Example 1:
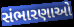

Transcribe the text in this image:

સંભારણાઓ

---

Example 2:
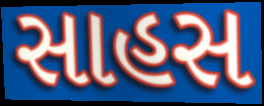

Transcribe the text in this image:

સાહસ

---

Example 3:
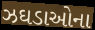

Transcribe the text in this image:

ઝઘડાઓના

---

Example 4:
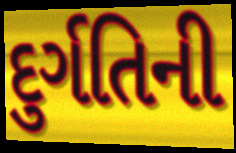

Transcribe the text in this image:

દુર્ગતિની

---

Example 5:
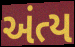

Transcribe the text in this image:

અંત્ય